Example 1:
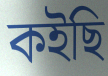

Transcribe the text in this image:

কইছি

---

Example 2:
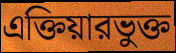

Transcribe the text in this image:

এক্তিয়ারভুক্ত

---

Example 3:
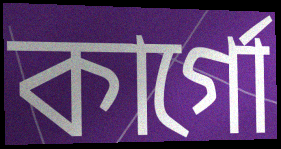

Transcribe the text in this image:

কার্গো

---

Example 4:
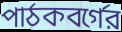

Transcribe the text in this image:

পাঠকবর্গের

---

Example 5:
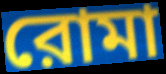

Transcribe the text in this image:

রোমা